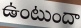
ఉంటుందా